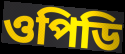
ওপিডি